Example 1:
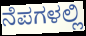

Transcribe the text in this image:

ನೆಪಗಳಲ್ಲಿ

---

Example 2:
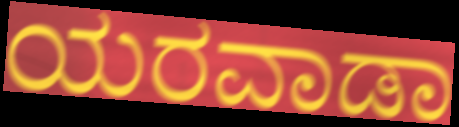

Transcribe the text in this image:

ಯರವಾಡಾ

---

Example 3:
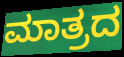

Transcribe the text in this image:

ಮಾತ್ರದ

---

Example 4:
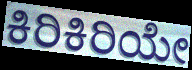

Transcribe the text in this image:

ಕಿರಿಕಿರಿಯೇ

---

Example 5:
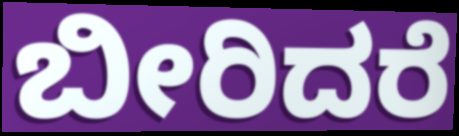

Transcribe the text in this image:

ಬೀರಿದರೆ